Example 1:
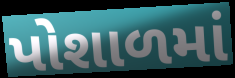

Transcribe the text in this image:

પોશાળમાં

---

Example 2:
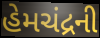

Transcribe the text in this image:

હેમચંદ્રની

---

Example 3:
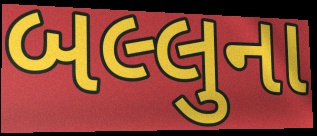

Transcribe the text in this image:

બલ્લુના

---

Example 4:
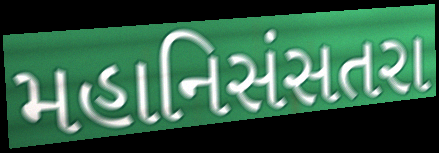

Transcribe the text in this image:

મહાનિસંસતરા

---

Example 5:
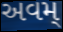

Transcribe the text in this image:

અવમ્